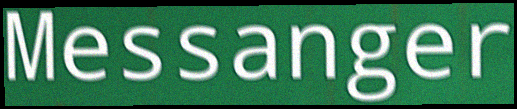
Messanger